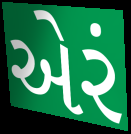
એરં